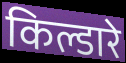
किल्डारे